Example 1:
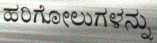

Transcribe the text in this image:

ಹರಿಗೋಲುಗಳನ್ನು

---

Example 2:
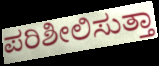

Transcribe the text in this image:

ಪರಿಶೀಲಿಸುತ್ತಾ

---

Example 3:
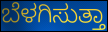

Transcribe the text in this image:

ಬೆಳಗಿಸುತ್ತಾ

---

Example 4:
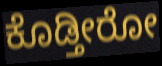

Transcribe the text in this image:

ಕೊಡ್ತೀರೋ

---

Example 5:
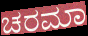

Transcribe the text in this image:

ಚರಮಾ